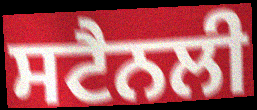
ਸਟੈਨਲੀ